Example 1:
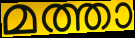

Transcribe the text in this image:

മത്താ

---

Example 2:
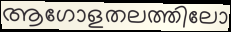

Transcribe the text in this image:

ആഗോളതലത്തിലോ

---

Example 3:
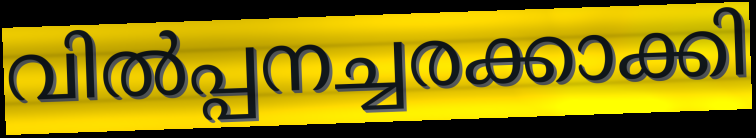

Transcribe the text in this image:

വിൽപ്പനച്ചരക്കാക്കി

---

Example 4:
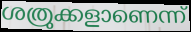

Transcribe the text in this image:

ശത്രുക്കളാണെന്ന്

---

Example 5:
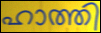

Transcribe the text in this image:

ഹാത്തി